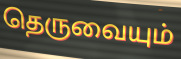
தெருவையும்